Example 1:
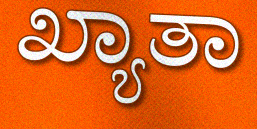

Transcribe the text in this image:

ಖ್ಯಾತಾ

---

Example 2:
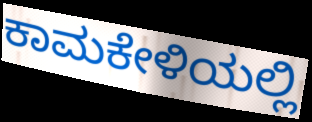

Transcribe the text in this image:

ಕಾಮಕೇಳಿಯಲ್ಲಿ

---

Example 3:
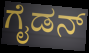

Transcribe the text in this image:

ಗೈಡನ್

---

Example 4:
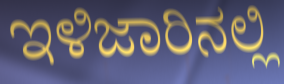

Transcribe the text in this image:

ಇಳಿಜಾರಿನಲ್ಲಿ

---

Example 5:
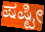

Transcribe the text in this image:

ಷಷ್ಟೀ